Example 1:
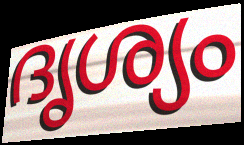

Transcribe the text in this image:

ദൃശ്യം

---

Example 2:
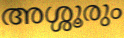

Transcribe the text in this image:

അശ്ശൂരും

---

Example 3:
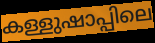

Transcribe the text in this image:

കള്ളുഷാപ്പിലെ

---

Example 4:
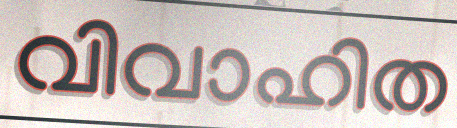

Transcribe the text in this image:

വിവാഹിത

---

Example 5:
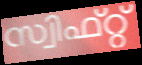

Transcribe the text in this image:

സ്വിഫ്റ്റ്